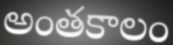
అంతకాలం